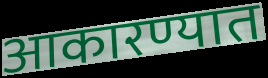
आकारण्यात